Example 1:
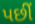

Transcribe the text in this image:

પછીં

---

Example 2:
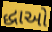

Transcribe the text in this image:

દ્ધાઓ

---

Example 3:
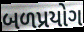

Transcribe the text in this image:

બળપ્રયોગ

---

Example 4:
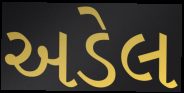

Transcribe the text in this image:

અડેલ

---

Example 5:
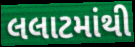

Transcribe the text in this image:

લલાટમાંથી